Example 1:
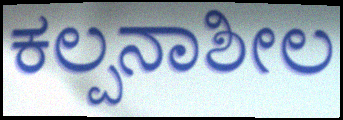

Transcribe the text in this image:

ಕಲ್ಪನಾಶೀಲ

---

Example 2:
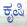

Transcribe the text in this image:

ಕೃಷಿ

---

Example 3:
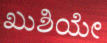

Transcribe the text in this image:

ಖುಶಿಯೇ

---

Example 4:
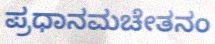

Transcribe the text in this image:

ಪ್ರಧಾನಮಚೇತನಂ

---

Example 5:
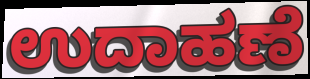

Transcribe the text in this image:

ಉದಾಹಣೆ